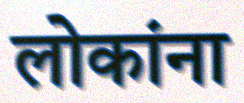
लोकांना